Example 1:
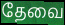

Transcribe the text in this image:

தேவை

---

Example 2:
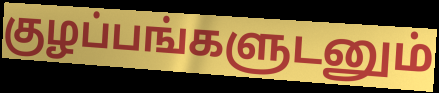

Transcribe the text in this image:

குழப்பங்களுடனும்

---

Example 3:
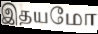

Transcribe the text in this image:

இதயமோ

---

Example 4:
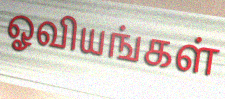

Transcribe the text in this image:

ஓவியங்கள்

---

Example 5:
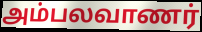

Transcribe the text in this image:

அம்பலவாணர்